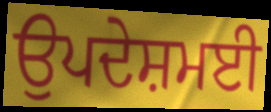
ਉਪਦੇਸ਼ਮਈ